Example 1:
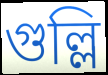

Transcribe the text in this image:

গুল্লি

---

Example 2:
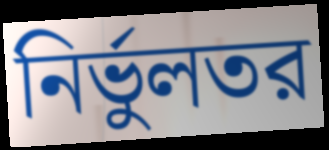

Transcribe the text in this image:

নির্ভুলতর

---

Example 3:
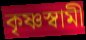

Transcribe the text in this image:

কৃষ্ণস্বামী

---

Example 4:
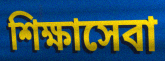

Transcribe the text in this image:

শিক্ষাসেবা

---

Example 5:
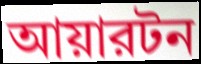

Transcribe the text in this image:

আয়ারটন